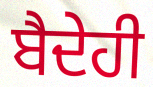
ਬੈਦੇਹੀ